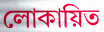
লোকায়িত